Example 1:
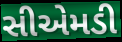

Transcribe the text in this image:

સીએમડી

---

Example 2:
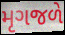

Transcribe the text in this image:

મૃગજળે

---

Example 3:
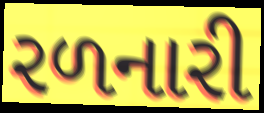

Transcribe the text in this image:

રળનારી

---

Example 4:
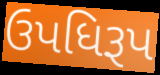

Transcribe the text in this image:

ઉપધિરૂપ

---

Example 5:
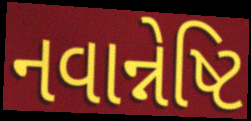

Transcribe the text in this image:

નવાન્નેષ્ટિ